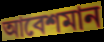
আবেশমান